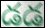
డడ